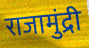
राजामुंद्री